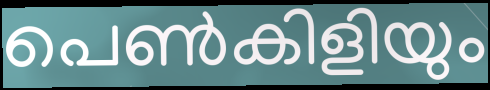
പെൺകിളിയും